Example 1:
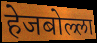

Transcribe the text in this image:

हेजबोल्ला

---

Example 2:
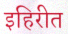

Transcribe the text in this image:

इहिरीत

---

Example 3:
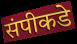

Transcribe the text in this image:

संपीकडे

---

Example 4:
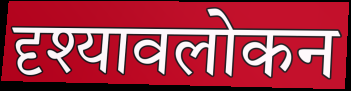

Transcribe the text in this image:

दृश्‍यावलोकन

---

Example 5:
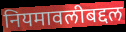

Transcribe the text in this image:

नियमावलीबद्दल